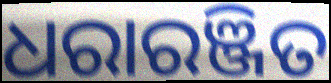
ଧରାରଞ୍ଜିତ